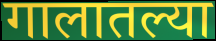
गालातल्या